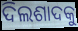
ଦିଲଶାଦକୁ